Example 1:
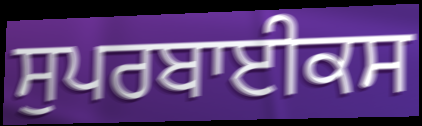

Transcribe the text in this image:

ਸੁਪਰਬਾਈਕਸ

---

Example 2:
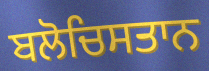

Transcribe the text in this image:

ਬਲੋਚਿਸਤਾਨ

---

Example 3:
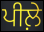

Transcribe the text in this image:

ਪੀਲ਼ੇ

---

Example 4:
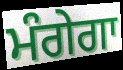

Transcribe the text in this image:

ਮੰਗੇਗਾ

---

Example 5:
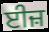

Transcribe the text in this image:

ਈਜ਼